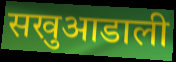
सखुआडाली